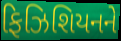
ફિઝિશિયનને